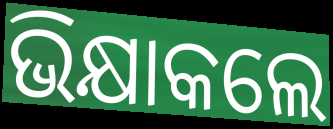
ଭିକ୍ଷାକଲେ